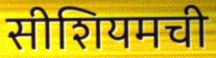
सीशियमची